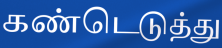
கண்டெடுத்து